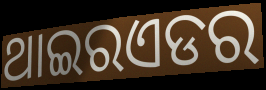
ଥାଇରଏଡର